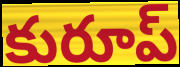
కురూప్